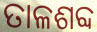
ତାଳଶବ୍ଦ